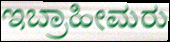
ಇಬ್ರಾಹೀಮರು